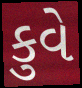
કુવે